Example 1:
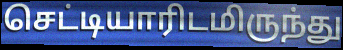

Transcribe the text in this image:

செட்டியாரிடமிருந்து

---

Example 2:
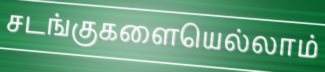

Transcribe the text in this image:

சடங்குகளையெல்லாம்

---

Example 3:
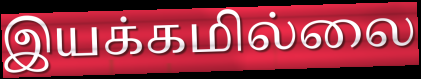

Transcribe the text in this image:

இயக்கமில்லை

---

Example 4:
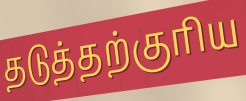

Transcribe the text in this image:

தடுத்தற்குரிய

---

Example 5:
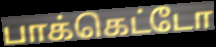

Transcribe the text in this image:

பாக்கெட்டோ